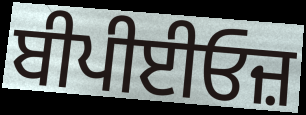
ਬੀਪੀਈਓਜ਼